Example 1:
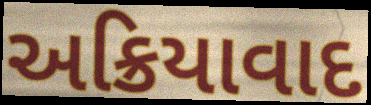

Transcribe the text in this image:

અક્રિયાવાદ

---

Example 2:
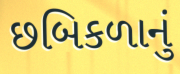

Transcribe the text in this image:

છબિકળાનું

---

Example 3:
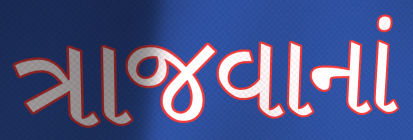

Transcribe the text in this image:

ત્રાજવાનાં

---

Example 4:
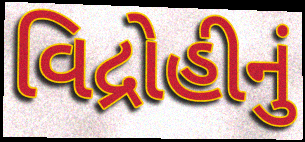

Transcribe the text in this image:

વિદ્રોહીનું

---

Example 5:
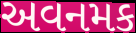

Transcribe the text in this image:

અવનમક